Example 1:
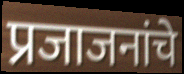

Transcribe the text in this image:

प्रजाजनांचे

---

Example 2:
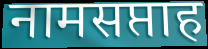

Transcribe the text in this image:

नामसप्ताह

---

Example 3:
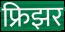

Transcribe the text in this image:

फ्रिझर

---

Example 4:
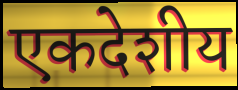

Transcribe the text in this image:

एकदेशीय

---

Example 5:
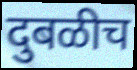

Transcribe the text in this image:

दुबळीच